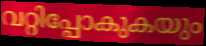
വറ്റിപ്പോകുകയും